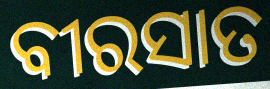
ବୀରସାତ